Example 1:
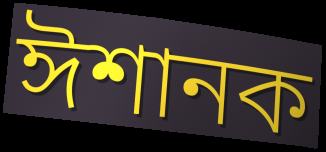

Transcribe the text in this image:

ঈশানক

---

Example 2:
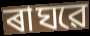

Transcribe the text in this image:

ৰাঘৱে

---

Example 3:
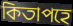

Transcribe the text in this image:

কিতাপহে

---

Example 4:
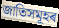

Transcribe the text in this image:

জাতিসমূহৰ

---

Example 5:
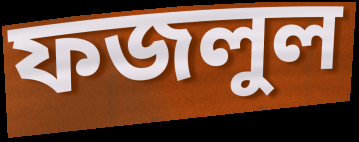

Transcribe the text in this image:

ফজলুল